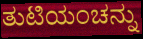
ತುಟಿಯಂಚನ್ನು